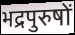
भद्रपुरुषों